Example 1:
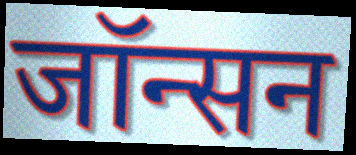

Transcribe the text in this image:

जॉन्सन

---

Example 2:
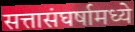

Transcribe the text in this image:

सत्तासंघर्षामध्ये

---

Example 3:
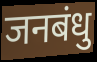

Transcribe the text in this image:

जनबंधु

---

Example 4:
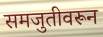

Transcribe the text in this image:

समजुतीवरून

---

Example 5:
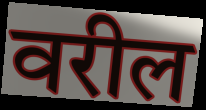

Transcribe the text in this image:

वरील